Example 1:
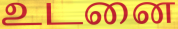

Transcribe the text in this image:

உடனை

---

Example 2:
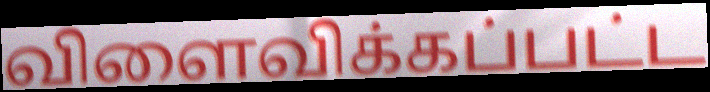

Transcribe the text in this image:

விளைவிக்கப்பட்ட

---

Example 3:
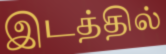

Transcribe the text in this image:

இடத்தில்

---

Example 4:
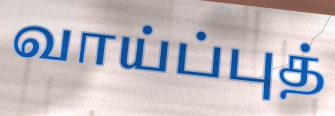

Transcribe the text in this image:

வாய்ப்புத்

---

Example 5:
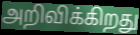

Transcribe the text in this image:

அறிவிக்கிறது